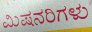
ಮಿಷನರಿಗಳು